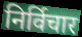
निर्विचार